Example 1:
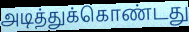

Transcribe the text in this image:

அடித்துக்கொண்டது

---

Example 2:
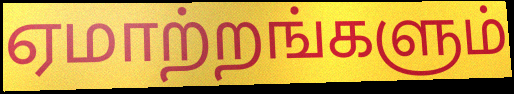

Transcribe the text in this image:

ஏமாற்றங்களும்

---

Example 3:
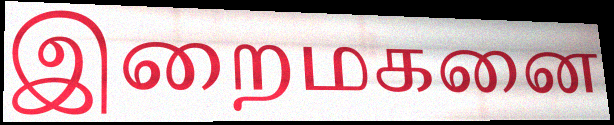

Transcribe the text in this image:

இறைமகனை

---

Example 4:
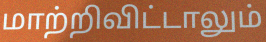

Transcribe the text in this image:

மாற்றிவிட்டாலும்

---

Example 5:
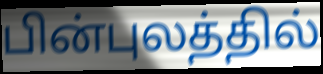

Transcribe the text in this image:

பின்புலத்தில்